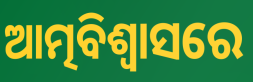
ଆତ୍ମବିଶ୍ଵାସରେ